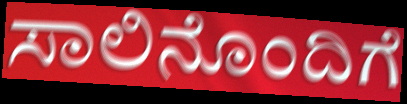
ಸಾಲಿನೊಂದಿಗೆ